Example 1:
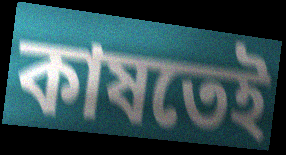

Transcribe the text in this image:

কাষতেই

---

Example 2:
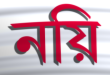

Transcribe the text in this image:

নয়ি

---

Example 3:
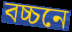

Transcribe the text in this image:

বচ্চনে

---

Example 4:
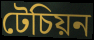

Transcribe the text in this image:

টেচিয়ন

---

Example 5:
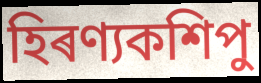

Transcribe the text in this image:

হিৰণ্যকশিপু